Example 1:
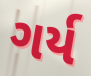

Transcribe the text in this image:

ગર્ય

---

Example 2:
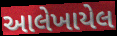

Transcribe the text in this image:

આલેખાયેલ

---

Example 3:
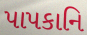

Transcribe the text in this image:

પાપકાનિ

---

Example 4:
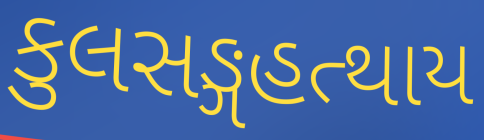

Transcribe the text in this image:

કુલસઙ્ગહત્થાય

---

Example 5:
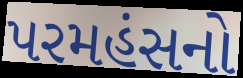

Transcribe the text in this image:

પરમહંસનો